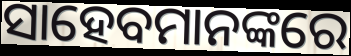
ସାହେବମାନଙ୍କରେ